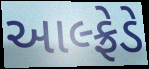
આલ્ફ્રેડે